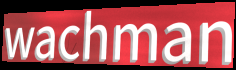
wachman